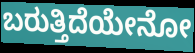
ಬರುತ್ತಿದೆಯೇನೋ